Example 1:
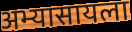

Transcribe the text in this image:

अभ्यासायला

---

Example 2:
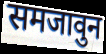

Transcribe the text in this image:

समजावुन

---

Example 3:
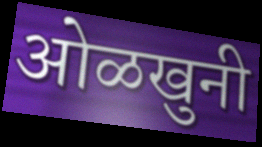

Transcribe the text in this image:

ओळखुनी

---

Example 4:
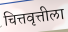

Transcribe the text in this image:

चित्तवृत्तीला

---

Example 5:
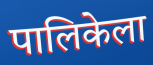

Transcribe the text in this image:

पालिकेला